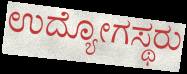
ಉದ್ಯೋಗಸ್ಥರು